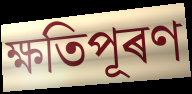
ক্ষতিপূৰণ